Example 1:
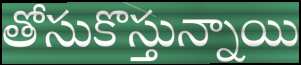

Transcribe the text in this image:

తోసుకొస్తున్నాయి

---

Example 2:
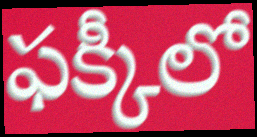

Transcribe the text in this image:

ఫక్కీలో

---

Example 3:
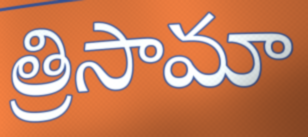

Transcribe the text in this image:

త్రిసామా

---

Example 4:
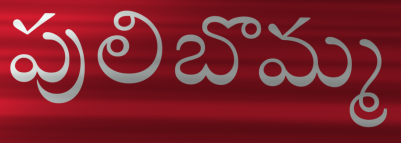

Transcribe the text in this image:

పులిబొమ్మ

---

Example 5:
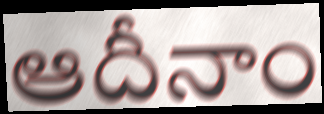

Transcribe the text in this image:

ఆదీనాం